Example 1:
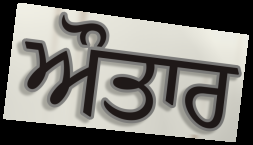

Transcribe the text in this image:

ਔਤਾਰ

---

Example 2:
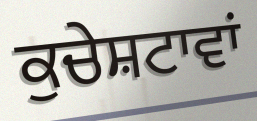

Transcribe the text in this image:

ਕੁਚੇਸ਼ਟਾਵਾਂ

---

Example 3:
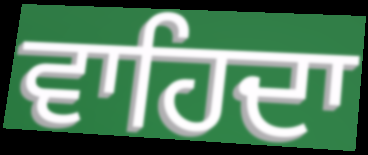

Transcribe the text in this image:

ਵਾਹਿਦਾ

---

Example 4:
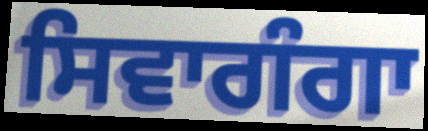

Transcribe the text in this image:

ਸਿਵਾਗੰਗਾ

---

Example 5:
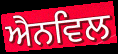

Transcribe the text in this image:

ਐਨਵਿਲ